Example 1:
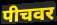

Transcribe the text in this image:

पीचवर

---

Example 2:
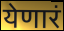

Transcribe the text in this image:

येणारं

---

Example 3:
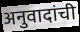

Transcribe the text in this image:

अनुवादांची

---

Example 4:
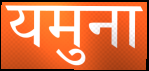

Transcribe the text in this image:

यमुना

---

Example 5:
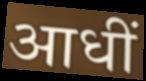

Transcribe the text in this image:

आधीं